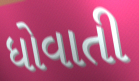
ધોવાતી